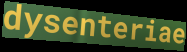
dysenteriae